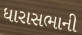
ધારાસભાની